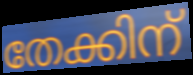
തേക്കിന്